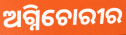
ଅଗ୍ନିଚୋରୀର